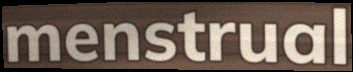
menstrual